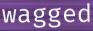
wagged